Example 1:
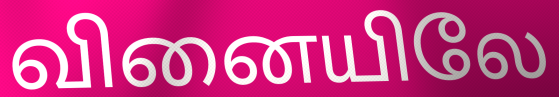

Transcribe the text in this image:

வினையிலே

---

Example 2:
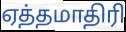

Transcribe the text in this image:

ஏத்தமாதிரி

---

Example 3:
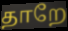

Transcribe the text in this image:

தாறே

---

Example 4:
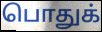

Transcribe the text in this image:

பொதுக்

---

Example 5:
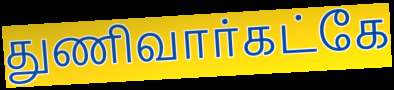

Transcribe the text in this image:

துணிவார்கட்கே